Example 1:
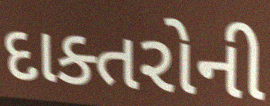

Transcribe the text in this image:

દાક્તરોની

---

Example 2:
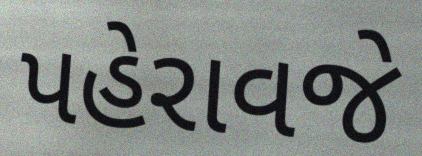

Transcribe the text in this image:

પહેરાવજે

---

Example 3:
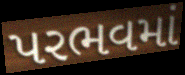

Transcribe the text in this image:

પરભવમાં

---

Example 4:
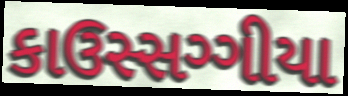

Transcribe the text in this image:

કાઉસ્સગ્ગીયા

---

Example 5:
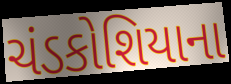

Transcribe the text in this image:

ચંડકોશિયાના